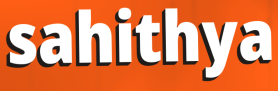
sahithya